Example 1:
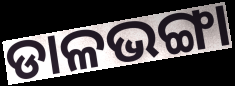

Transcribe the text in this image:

ଡାଳଭଙ୍ଗା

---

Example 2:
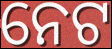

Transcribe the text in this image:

ନେଟ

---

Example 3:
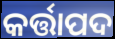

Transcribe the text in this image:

କର୍ତ୍ତାପଦ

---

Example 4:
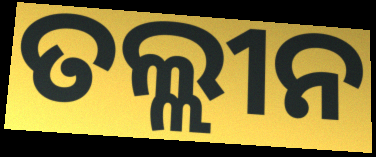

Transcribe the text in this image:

ତଲ୍ଲୀନ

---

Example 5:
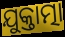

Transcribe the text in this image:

ଯୁକ୍ତାତ୍ମା